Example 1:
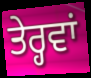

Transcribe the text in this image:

ਤੇਰ੍ਹਵਾਂ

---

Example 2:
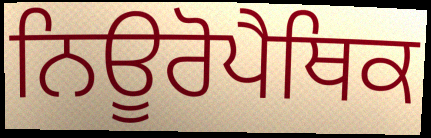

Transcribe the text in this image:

ਨਿਊਰੋਪੈਥਿਕ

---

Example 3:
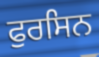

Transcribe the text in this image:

ਫੁਰਸਿਨ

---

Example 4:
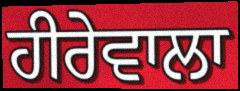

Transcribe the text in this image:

ਹੀਰੇਵਾਲਾ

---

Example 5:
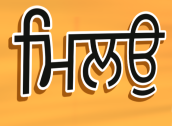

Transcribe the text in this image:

ਮਿਲਉ